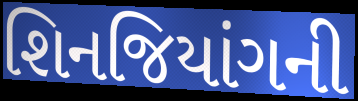
શિનજિયાંગની